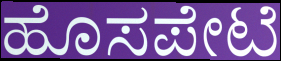
ಹೊಸಪೇಟೆ